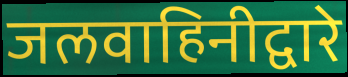
जलवाहिनीद्वारे